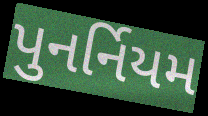
પુનર્નિયમ